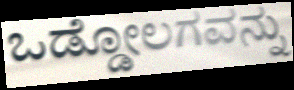
ಒಡ್ಡೋಲಗವನ್ನು